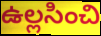
ఉల్లసించి